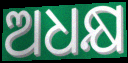
ଅଧକ୍ଷ